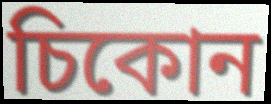
চিকোন